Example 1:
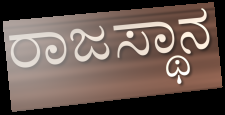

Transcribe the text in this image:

ರಾಜಸ್ಥಾನ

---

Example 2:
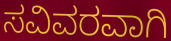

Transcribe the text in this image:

ಸವಿವರವಾಗಿ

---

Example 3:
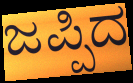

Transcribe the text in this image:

ಜಪ್ಪಿದ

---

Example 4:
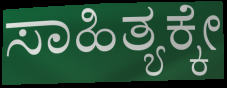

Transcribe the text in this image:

ಸಾಹಿತ್ಯಕ್ಕೇ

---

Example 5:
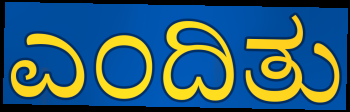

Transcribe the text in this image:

ಎಂದಿತು